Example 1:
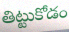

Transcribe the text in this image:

తిట్టుకోడం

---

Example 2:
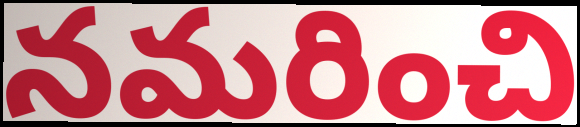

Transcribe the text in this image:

నమరించి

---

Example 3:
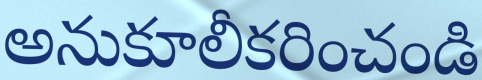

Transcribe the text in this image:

అనుకూలీకరించండి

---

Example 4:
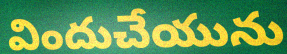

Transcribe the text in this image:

విందుచేయును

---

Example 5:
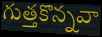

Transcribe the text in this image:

గుత్తకొన్నవా